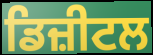
ਡਿਜ਼ੀਟਲ